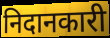
निदानकारी